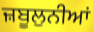
ਜ਼ਬੂਲੁਨੀਆਂ